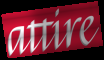
attire